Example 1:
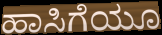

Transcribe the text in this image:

ಹಾಸಿಗೆಯೂ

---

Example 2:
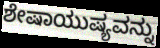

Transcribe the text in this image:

ಶೇಷಾಯುಷ್ಯವನ್ನು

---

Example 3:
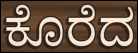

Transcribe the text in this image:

ಕೊರೆದ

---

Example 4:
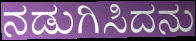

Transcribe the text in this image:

ನಡುಗಿಸಿದನು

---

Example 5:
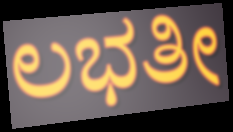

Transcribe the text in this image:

ಲಭತೀ